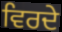
ਵਿਰਦੇ